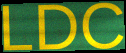
LDC